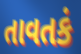
તાવતકં